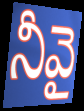
నీవై